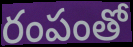
రంపంతో